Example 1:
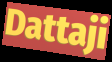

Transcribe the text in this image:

Dattaji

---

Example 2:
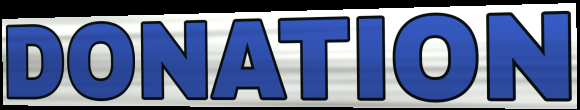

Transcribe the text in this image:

DONATION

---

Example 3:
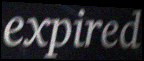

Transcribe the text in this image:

expired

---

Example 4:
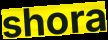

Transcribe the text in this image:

shora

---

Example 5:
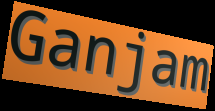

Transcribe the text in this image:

Ganjam